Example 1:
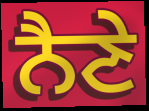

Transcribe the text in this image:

ਨੈਣੇ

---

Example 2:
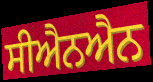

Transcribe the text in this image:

ਸੀਐਨਐਨ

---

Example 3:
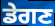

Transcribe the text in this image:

ਡੇਗਣ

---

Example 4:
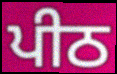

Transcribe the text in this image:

ਪੀਠ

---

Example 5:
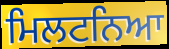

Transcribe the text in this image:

ਮਿਲਟਨਿਆ